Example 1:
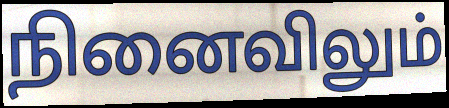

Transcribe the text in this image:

நினைவிலும்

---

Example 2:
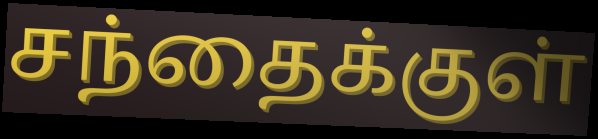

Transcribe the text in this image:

சந்தைக்குள்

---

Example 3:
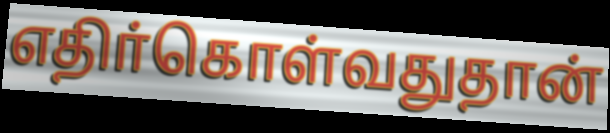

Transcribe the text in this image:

எதிர்கொள்வதுதான்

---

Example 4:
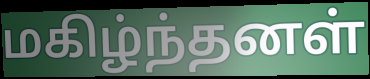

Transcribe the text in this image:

மகிழ்ந்தனள்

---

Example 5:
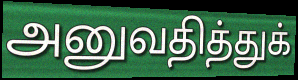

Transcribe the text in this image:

அனுவதித்துக்